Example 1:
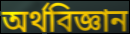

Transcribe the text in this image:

অৰ্থবিজ্ঞান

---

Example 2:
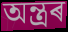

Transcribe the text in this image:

অন্ত্ৰৰ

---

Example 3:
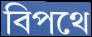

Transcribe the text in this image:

বিপথে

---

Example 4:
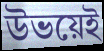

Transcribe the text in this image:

উভয়েই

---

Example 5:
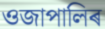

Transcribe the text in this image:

ওজাপালিৰ